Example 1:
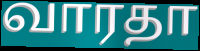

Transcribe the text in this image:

வாரதா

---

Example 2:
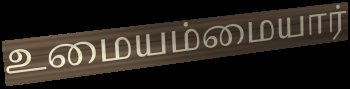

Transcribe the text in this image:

உமையம்மையார்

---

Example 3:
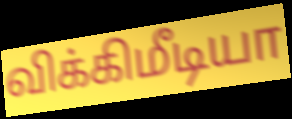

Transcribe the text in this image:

விக்கிமீடியா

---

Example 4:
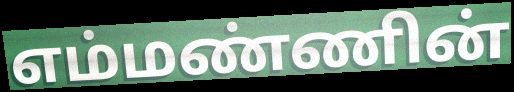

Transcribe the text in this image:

எம்மண்ணின்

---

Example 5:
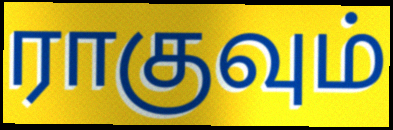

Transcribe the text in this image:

ராகுவும்